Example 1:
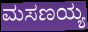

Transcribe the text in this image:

ಮಸಣಯ್ಯ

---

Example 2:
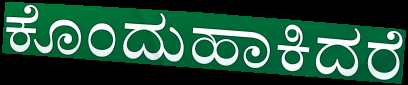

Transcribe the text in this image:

ಕೊಂದುಹಾಕಿದರೆ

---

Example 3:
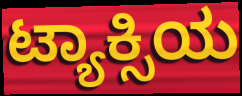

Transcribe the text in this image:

ಟ್ಯಾಕ್ಸಿಯ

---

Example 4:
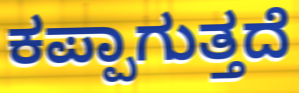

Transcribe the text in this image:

ಕಪ್ಪಾಗುತ್ತದೆ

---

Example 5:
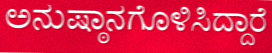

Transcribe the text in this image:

ಅನುಷ್ಠಾನಗೊಳಿಸಿದ್ದಾರೆ